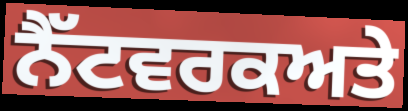
ਨੈੱਟਵਰਕਅਤੇ